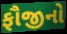
ફૌજીનો